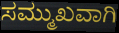
ಸಮ್ಮುಖವಾಗಿ